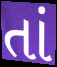
તાં